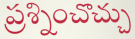
ప్రశ్నించొచ్చు